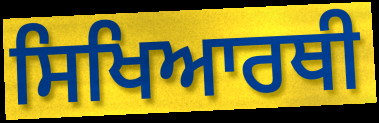
ਸਿਖਿਆਰਥੀ